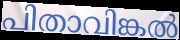
പിതാവിങ്കൽ